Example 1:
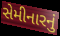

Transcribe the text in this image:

સેમીનારનું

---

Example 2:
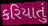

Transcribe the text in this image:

કરિયાતું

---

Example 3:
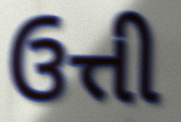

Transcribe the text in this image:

ઉત્તી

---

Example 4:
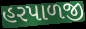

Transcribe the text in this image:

હરપાળજી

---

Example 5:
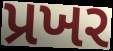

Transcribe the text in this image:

પ્રખર